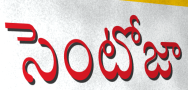
సెంటోజా